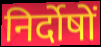
निर्दोषों